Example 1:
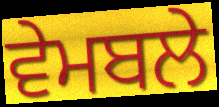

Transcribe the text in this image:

ਵੇਮਬਲੇ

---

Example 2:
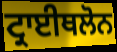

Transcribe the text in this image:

ਟ੍ਰਾਈਥਲੋਨ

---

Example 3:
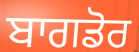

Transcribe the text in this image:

ਬਾਗਡੋਰ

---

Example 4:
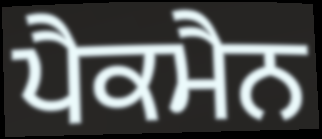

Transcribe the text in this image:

ਪੈਕਮੈਨ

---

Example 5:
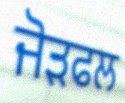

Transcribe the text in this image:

ਜੋੜਫਲ